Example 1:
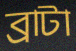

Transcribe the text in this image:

ব্রাটা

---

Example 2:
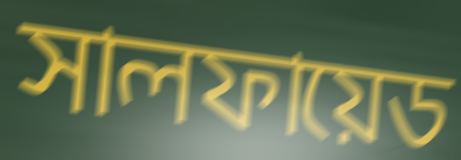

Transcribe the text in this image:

সালফায়েড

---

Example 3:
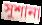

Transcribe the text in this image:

সুশানা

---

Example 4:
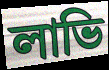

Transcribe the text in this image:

লাভি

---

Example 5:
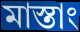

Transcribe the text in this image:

মাস্তাং